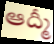
ఆద్మీ